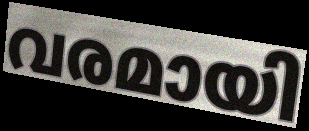
വരമായി